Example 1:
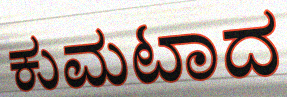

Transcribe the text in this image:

ಕುಮಟಾದ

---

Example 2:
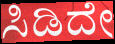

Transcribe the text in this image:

ಸಿಡಿದೇ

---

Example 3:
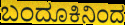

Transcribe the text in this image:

ಬಂದೂಕಿನಿಂದ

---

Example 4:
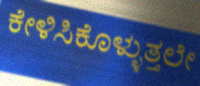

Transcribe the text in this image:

ಕೇಳಿಸಿಕೊಳ್ಳುತ್ತಲೇ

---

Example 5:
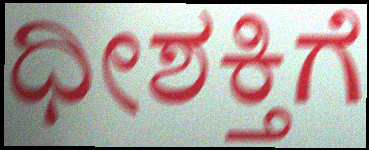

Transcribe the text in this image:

ಧೀಶಕ್ತಿಗೆ